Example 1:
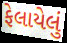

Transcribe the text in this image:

ફેલાયેલું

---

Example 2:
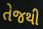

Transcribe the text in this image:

તેજથી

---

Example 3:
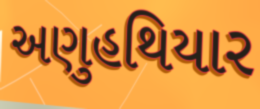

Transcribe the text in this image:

અણુહથિયાર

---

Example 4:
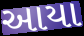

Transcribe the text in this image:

આયા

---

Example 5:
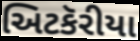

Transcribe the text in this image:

અિટકૅરીયા